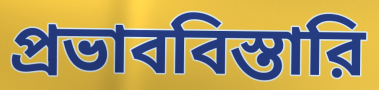
প্রভাববিস্তারি